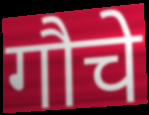
गौचे